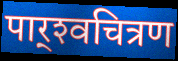
पार्श्वचित्रण